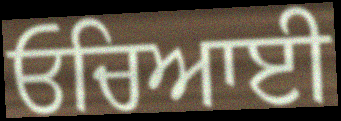
ਓਚਿਆਈ